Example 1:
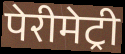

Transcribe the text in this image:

पेरीमेट्री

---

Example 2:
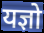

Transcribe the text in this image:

यज्ञो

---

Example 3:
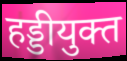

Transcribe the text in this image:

हड्डीयुक्त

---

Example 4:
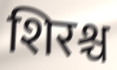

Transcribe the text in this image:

शिरश्च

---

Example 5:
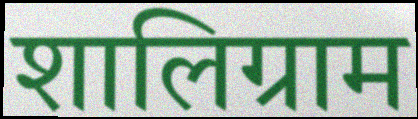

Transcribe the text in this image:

शालिग्राम